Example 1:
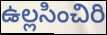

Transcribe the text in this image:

ఉల్లసించిరి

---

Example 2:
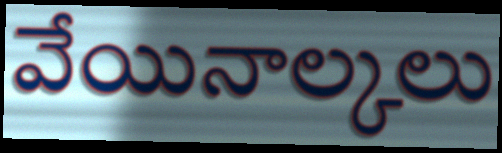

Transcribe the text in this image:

వేయినాల్కలు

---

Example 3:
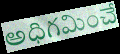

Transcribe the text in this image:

అధిగమించే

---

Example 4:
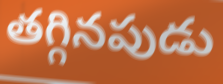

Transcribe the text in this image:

తగ్గినపుడు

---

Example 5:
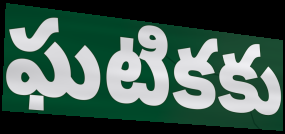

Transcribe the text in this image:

ఘటికకు